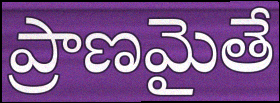
ప్రాణమైతే